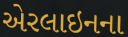
એરલાઇનના